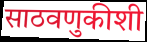
साठवणुकीशी